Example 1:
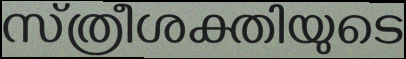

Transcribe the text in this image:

സ്‌ത്രീശക്തിയുടെ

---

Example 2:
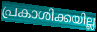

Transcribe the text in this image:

പ്രകാശിക്കയില്ല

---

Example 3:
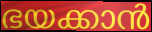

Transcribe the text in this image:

ഭയക്കാൻ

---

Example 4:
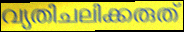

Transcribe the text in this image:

വ്യതിചലിക്കരുത്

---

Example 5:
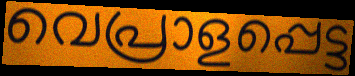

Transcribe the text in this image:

വെപ്രാളപ്പെട്ട